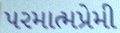
પરમાત્મપ્રેમી